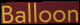
Balloon